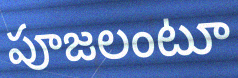
పూజలంటూ